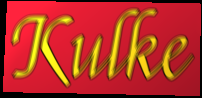
Kulke